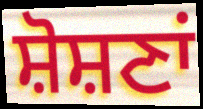
ਸ਼ੋਸ਼ਣਾਂ